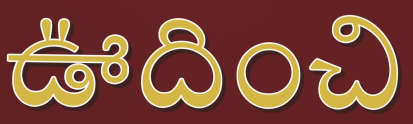
ఊదించి